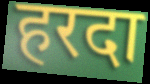
हरदा